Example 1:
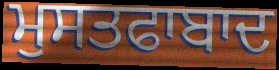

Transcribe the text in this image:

ਮੁਸਤਫਾਬਾਦ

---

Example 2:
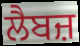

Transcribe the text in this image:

ਲੈਬਜ਼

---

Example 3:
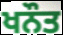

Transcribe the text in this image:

ਖਨੌਤ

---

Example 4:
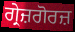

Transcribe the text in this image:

ਗ੍ਰੇਜ਼ਗੋਰਜ਼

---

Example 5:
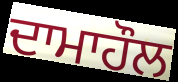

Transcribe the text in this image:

ਦਾਮਾਹੌਲ